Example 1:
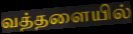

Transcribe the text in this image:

வத்தளையில்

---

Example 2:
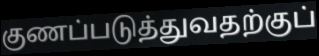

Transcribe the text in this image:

குணப்படுத்துவதற்குப்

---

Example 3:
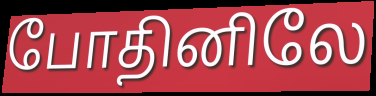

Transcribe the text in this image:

போதினிலே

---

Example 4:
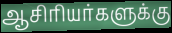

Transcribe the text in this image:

ஆசிரியர்களுக்கு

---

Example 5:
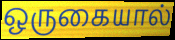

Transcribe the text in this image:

ஒருகையால்